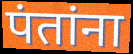
पंतांना